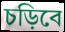
চড়িবে